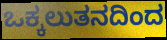
ಒಕ್ಕಲುತನದಿಂದ